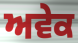
ਅਵੇਕ